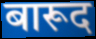
बारूद